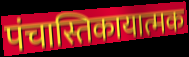
पंचास्तिकायात्मक